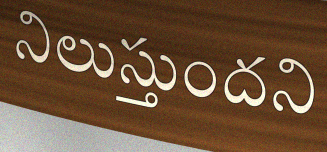
నిలుస్తుందని